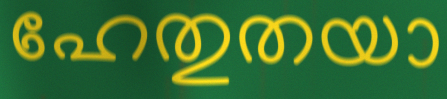
ഹേതുതയാ